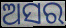
ଅସର